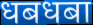
धबधबा